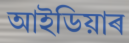
আইডিয়াৰ